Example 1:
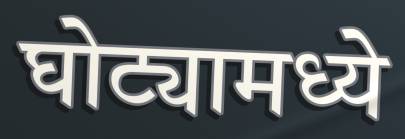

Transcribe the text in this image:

घोट्यामध्ये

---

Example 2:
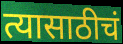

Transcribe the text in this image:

त्यासाठीचं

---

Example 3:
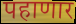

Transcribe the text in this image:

पहाणार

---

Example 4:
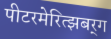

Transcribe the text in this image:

पीटरमेरित्झबर्ग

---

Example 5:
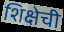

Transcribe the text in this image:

शिक्षेची